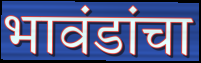
भावंडांचा